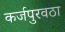
कर्जपुरवठा